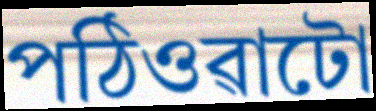
পঠিওৱাটো